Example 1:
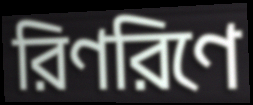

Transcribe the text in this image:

রিণরিণে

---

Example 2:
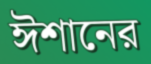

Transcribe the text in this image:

ঈশানের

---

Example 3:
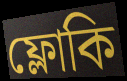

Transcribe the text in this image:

ফ্লোকি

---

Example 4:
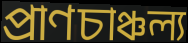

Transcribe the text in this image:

প্রাণচাঞ্চল্য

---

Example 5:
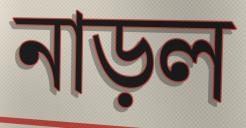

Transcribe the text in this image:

নাড়ল